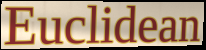
Euclidean